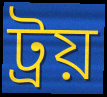
ট্ৰয়